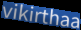
vikirthaa